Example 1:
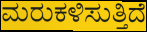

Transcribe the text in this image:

ಮರುಕಳಿಸುತ್ತಿದೆ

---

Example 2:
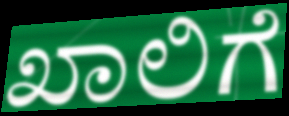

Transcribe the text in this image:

ಖಾಲಿಗೆ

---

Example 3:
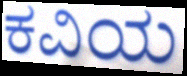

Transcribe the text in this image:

ಕವಿಯ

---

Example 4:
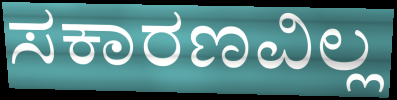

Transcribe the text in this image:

ಸಕಾರಣವಿಲ್ಲ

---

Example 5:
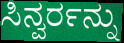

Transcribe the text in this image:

ಸಿನ್ವರ್ರನ್ನು